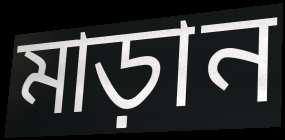
মাড়ান